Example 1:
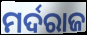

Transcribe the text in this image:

ମର୍ଦରାଜ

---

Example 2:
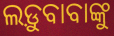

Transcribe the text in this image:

ଲଡ଼ୁବାବାଙ୍କୁ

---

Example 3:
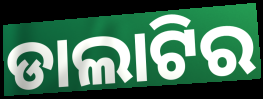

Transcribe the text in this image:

ଡାଲାଟିର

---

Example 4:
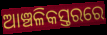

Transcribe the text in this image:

ଆଞ୍ଚଳିକସ୍ତରରେ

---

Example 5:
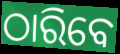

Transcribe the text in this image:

ଠାରିବେ